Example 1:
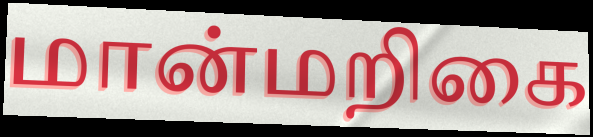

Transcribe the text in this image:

மான்மறிகை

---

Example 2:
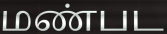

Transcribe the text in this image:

மண்பட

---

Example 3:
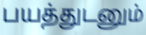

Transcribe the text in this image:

பயத்துடனும்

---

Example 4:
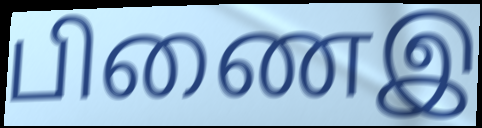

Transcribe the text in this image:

பிணைஇ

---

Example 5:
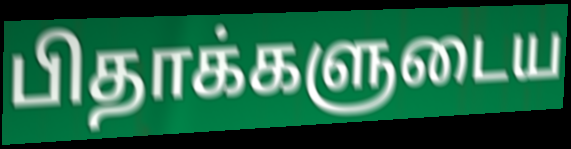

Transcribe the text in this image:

பிதாக்களுடைய